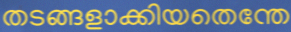
തടങ്ങളാക്കിയതെന്തേ